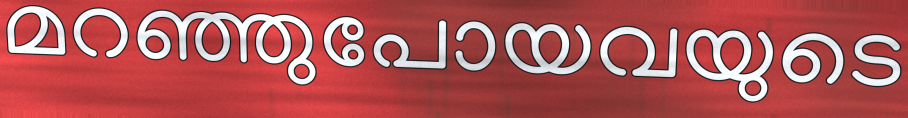
മറഞ്ഞുപോയവയുടെ